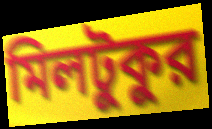
মিলটুকুর